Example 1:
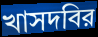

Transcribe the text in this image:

খাসদবির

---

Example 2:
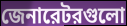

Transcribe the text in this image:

জেনারেটরগুলো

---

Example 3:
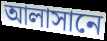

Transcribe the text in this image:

আলাসানে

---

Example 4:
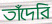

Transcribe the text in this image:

তাঁদেরি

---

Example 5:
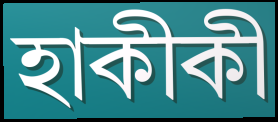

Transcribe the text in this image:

হাকীকী